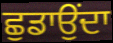
ਛੁਡਾਉਂਦਾ